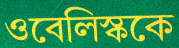
ওবেলিস্ককে